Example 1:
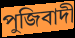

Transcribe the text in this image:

পুজিবাদী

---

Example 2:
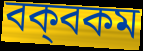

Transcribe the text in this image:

বক্‌বকম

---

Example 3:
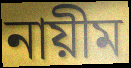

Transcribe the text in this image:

নায়ীম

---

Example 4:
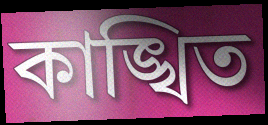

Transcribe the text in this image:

কাঙ্খিত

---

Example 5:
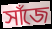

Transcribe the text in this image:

সাঁজে